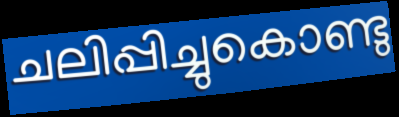
ചലിപ്പിച്ചുകൊണ്ടു